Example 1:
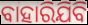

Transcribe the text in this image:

ବାହାରିଯିବି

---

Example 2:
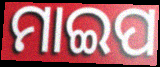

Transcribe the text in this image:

ମାଇପ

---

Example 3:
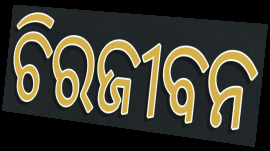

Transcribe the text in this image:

ଚିରଜୀବନ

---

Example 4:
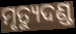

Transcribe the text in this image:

ମୃତ୍ୟୁଦଣ୍ଡ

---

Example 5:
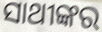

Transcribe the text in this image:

ସାଥୀଙ୍କର